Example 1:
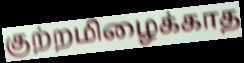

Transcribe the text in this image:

குற்றமிழைக்காத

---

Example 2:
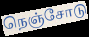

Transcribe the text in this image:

நெஞ்சோடு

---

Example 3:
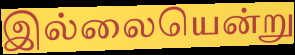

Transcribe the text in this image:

இல்லையென்று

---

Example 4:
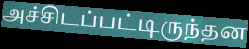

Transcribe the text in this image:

அச்சிடப்பட்டிருந்தன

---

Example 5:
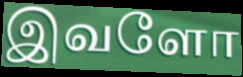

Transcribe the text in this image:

இவளோ